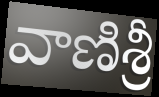
వాణిశ్రీ